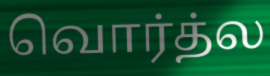
வொர்த்ல